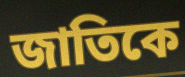
জাতিকে